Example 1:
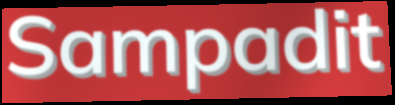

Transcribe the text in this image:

Sampadit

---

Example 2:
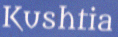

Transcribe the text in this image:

Kushtia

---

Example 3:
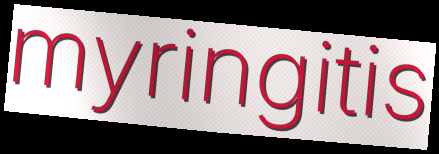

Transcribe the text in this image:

myringitis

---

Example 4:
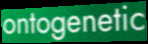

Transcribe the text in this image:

ontogenetic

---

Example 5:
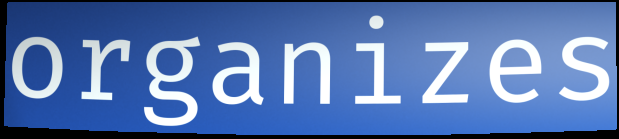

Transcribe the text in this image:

organizes